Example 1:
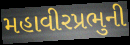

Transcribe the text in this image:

મહાવીરપ્રભુની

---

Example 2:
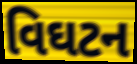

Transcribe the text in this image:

વિઘટન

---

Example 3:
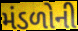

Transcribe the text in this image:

મંડળોની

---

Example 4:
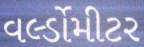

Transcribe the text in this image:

વર્લ્ડોમીટર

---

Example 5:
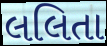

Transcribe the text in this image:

લલિતા